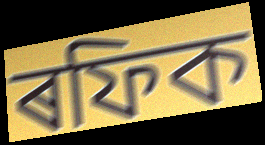
ৰফিক